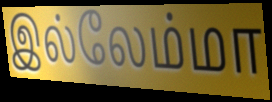
இல்லேம்மா